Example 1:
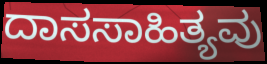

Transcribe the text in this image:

ದಾಸಸಾಹಿತ್ಯವು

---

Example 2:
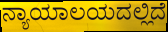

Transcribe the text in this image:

ನ್ಯಾಯಾಲಯದಲ್ಲಿದೆ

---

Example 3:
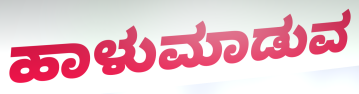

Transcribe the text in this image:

ಹಾಳುಮಾಡುವ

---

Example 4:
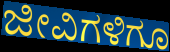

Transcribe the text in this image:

ಜೀವಿಗಳಿಗೂ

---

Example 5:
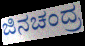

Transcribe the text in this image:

ಜಿನಚಂದ್ರ